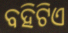
ବହିଟିଏ